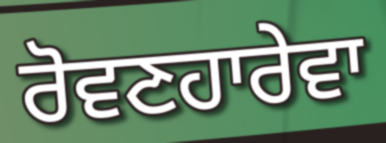
ਰੋਵਣਹਾਰੇਵਾ